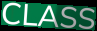
CLASS